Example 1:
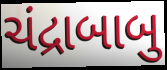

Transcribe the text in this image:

ચંદ્રાબાબુ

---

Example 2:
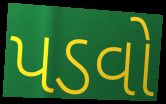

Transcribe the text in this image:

પડવો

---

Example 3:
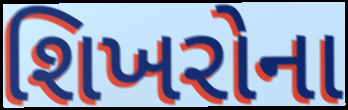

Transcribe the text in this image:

શિખરોના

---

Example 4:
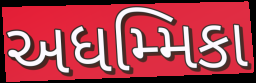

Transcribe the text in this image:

અધમ્મિકા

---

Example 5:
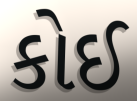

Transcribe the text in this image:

કોઈ